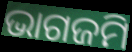
ଭାଗଜମି